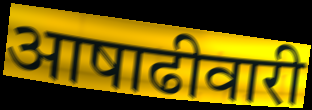
आषाढीवारी